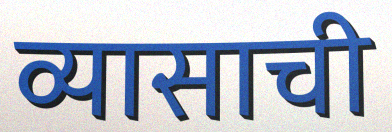
व्यासाची